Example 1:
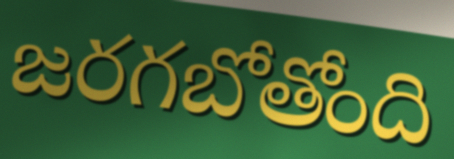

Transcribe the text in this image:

జరగబోతోంది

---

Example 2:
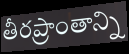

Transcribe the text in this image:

తీరప్రాంతాన్ని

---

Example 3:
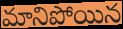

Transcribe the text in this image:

మానిపోయిన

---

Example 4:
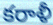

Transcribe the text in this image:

కరాళీ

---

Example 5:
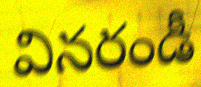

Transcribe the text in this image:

వినరండీ